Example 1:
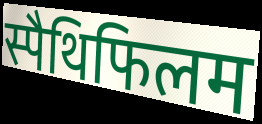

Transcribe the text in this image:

स्पैथिफिलम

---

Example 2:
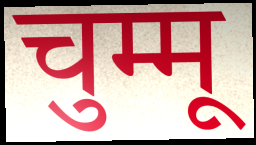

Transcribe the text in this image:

चुम्मू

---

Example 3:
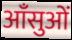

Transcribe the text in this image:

आँसुओं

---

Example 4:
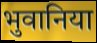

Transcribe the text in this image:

भुवानिया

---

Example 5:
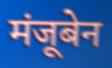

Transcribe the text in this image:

मंजूबेन